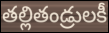
తల్లితండ్రులకీ